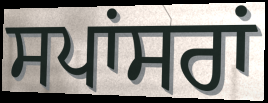
ਸਪਾਂਸਰਾਂ